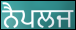
ਨੈਪਲਜ